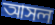
আসল